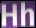
Hh